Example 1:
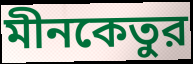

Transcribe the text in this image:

মীনকেতুর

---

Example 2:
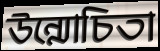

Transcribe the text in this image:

উন্মোচিতা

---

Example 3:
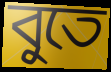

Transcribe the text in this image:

বুতে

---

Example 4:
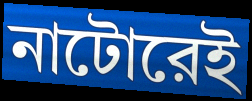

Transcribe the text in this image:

নাটোরেই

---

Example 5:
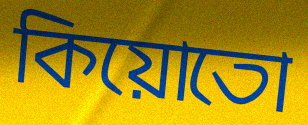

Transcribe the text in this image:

কিয়োতো